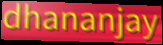
dhananjay